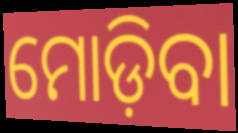
ମୋଡ଼ିବା